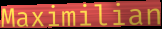
Maximilian